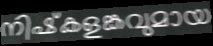
നിഷ്‌കളങ്കവുമായ